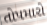
તોપમારો